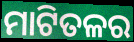
ମାଟିତଳର